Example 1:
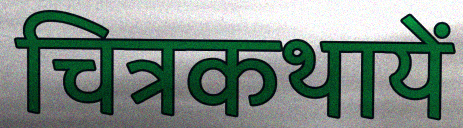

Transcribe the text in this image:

चित्रकथायें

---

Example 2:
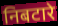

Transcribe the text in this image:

निबटारे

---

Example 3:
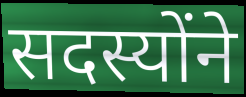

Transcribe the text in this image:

सदस्योंने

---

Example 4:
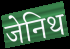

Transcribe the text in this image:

जेनिथ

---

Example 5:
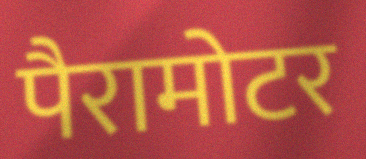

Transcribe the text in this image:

पैरामोटर